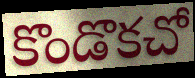
కొండొకచో